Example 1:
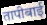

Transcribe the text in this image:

तापीबाई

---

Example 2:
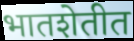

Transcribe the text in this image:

भातशेतीत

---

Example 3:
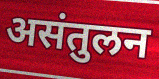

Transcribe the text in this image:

असंतुलन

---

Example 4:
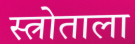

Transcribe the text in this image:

स्त्रोताला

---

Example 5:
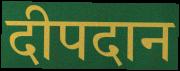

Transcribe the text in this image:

दीपदान